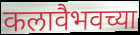
कलावैभवच्या